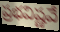
ప్రభవిష్ణవే